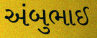
અંબુભાઈ